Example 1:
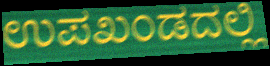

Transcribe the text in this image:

ಉಪಖಂಡದಲ್ಲಿ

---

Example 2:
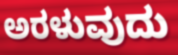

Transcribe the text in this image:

ಅರಳುವುದು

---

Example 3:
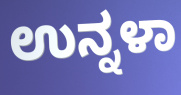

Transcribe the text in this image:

ಉನ್ನಳಾ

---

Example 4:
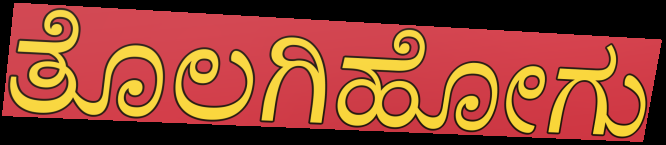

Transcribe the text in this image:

ತೊಲಗಿಹೋಗು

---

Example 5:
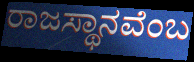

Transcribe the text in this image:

ರಾಜಸ್ಥಾನವೆಂಬ